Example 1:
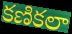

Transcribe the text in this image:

కణికలా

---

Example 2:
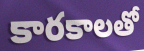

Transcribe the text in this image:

కారకాలతో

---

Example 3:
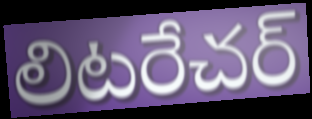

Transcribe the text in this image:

లిటరేచర్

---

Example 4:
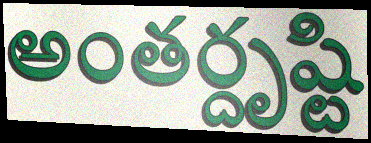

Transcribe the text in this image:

అంతర్దృష్టి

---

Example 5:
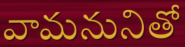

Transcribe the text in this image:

వామనునితో